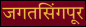
जगतसिंगपूर